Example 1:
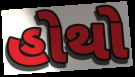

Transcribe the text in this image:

હોથો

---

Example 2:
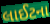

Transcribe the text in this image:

લાઈટના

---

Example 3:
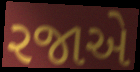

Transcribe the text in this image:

રજાએ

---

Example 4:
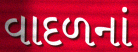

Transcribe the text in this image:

વાદળનાં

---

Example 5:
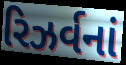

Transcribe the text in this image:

રિઝર્વનાં